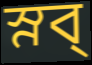
স্নব্